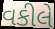
વકીલે